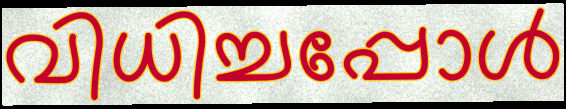
വിധിച്ചപ്പോൾ